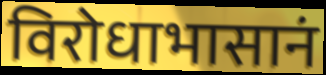
विरोधाभासानं